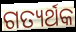
ଗତ୍ୟର୍ଥକ